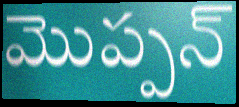
మొప్పన్